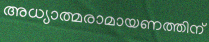
അധ്യാത്മരാമായണത്തിന്